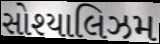
સોશ્યાલિઝમ